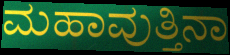
ಮಹಾವುತ್ತಿನಾ